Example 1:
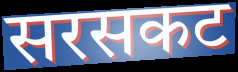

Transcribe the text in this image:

सरसकट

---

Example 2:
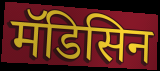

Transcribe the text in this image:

मॅडिसिन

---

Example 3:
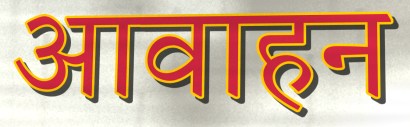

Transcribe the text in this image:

आवाहन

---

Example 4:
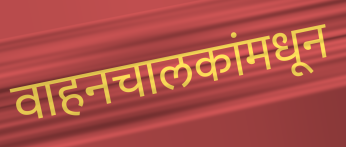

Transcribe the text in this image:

वाहनचालकांमधून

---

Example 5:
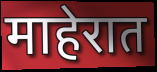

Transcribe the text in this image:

माहेरात